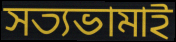
সত্যভামাই